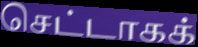
செட்டாகக்